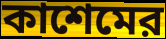
কাশেমের